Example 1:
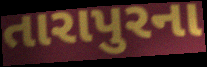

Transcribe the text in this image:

તારાપુરના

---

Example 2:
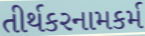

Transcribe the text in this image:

તીર્થકરનામકર્મ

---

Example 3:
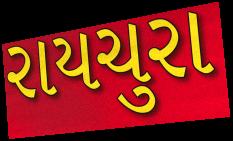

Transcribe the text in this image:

રાયચુરા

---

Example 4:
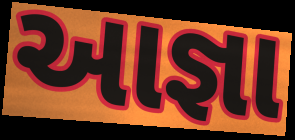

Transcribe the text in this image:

આજ્ઞા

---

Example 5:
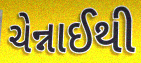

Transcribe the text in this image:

ચેન્નાઈથી